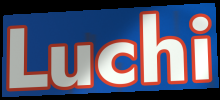
Luchi